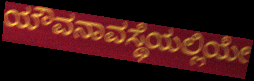
ಯೌವನಾವಸ್ಥೆಯಲ್ಲಿಯೇ